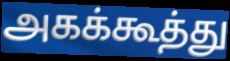
அகக்கூத்து